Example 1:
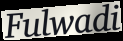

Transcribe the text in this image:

Fulwadi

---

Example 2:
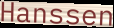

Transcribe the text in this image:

Hanssen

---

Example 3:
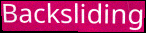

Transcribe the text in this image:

Backsliding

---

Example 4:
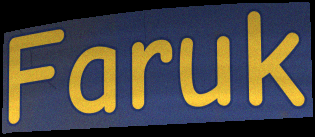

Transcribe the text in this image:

Faruk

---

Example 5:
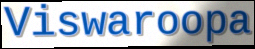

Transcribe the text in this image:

Viswaroopa